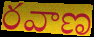
రవాణ